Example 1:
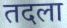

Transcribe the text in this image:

तदला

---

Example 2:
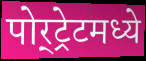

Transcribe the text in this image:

पोर्ट्रेटमध्ये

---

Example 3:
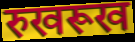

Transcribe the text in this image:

रुखरूख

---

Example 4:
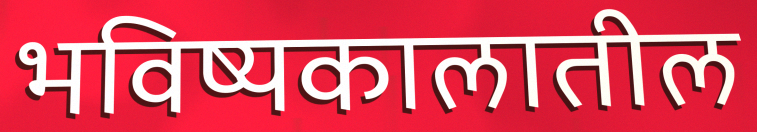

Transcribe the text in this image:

भविष्यकालातील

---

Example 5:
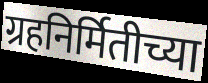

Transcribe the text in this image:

ग्रहनिर्मितीच्या